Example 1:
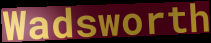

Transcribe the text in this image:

Wadsworth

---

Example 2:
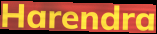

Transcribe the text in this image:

Harendra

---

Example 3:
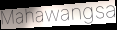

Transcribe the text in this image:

Mahawangsa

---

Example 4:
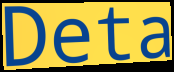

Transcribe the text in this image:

Deta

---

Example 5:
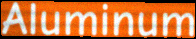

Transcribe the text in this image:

Aluminum